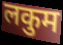
लकुम